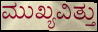
ಮುಖ್ಯವಿತ್ತು